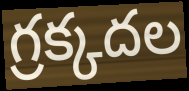
గ్రక్కదల